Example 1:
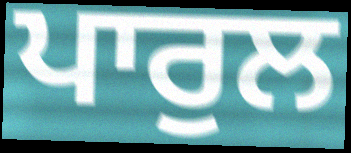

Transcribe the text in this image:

ਪਾਰੁਲ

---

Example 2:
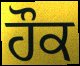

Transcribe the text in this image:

ਹੌਕ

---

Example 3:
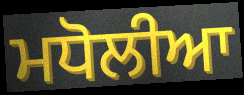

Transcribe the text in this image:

ਮਧੋਲੀਆ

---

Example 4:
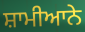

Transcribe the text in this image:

ਸ਼ਾਮੀਆਨੇ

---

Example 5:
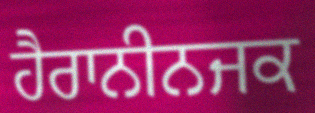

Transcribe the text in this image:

ਹੈਰਾਨੀਨਜਕ